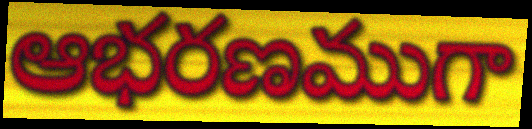
ఆభరణముగా